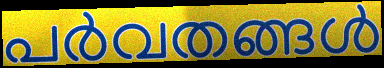
പർവതങ്ങൾ